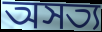
অসত্য